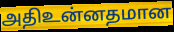
அதிஉன்னதமான